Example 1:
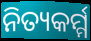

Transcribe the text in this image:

ନିତ୍ୟକର୍ମ୍ମ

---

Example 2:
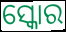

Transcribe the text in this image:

ସ୍କୋର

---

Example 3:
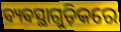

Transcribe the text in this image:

ବ୍ୟବସ୍ଥାଗୁଡ଼ିକରେ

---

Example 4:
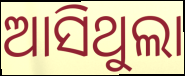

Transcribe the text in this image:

ଆସିଥୁଲା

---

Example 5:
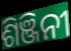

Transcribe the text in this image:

ଶିଞ୍ଜିନୀ